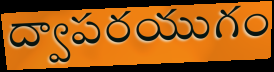
ద్వాపరయుగం